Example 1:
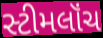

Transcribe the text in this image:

સ્ટીમલૉંચ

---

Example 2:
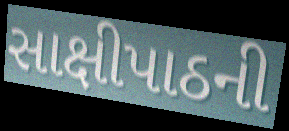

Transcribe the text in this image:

સાક્ષીપાઠની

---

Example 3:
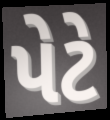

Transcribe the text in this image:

પેટે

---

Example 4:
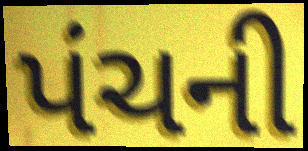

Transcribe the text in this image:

પંચની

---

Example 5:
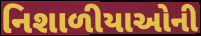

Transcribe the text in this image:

નિશાળીયાઓની